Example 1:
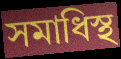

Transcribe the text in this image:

সমাধিস্থ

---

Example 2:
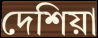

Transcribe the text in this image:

দেশিয়া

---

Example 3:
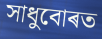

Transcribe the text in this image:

সাধুবোৰত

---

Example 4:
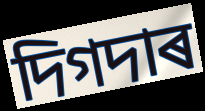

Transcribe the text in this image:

দিগদাৰ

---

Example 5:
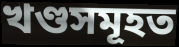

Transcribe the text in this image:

খণ্ডসমূহত